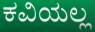
ಕವಿಯಲ್ಲ